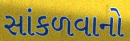
સાંકળવાનો